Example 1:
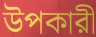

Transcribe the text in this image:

উপকারী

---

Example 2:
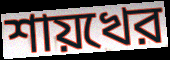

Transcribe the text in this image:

শায়খের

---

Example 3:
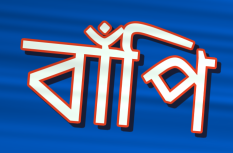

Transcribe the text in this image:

বাঁপি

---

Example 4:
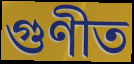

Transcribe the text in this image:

গুণীত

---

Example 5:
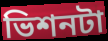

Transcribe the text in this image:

ভিশনটা